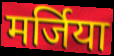
मर्जिया